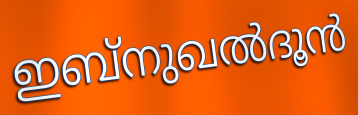
ഇബ്നുഖൽദൂൻ